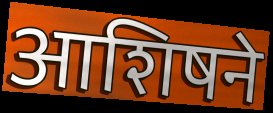
आशिषने